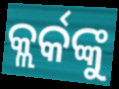
କ୍ଲର୍କଙ୍କୁ